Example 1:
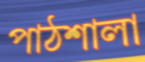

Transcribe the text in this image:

পাঠশালা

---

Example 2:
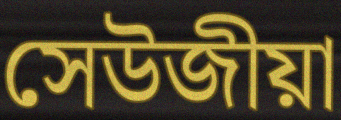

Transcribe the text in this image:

সেউজীয়া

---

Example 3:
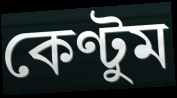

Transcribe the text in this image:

কেণ্টুম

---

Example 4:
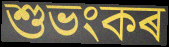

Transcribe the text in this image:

শুভংকৰ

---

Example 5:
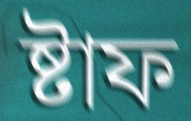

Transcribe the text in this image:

ষ্টাফ